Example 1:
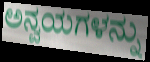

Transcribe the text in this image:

ಅನ್ವಯಗಳನ್ನು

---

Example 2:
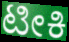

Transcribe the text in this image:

ಟೀಕಿ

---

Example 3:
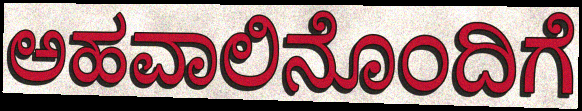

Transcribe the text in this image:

ಅಹವಾಲಿನೊಂದಿಗೆ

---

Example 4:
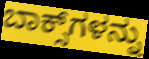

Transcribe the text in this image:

ಬಾಕ್ಸ್‌ಗಳನ್ನು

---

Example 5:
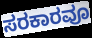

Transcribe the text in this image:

ಸರಕಾರವೂ